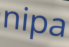
nipa